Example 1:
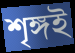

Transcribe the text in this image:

শৃঙ্গই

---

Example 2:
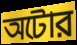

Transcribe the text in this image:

অটোর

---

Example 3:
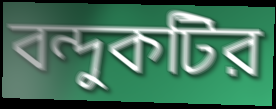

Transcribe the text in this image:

বন্দুকটির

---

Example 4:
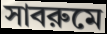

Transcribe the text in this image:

সাবরুমে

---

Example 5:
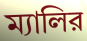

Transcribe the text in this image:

ম্যালির